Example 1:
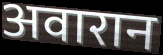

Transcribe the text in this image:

अवारान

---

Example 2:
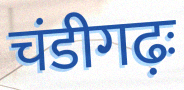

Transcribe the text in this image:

चंडीगढ़ः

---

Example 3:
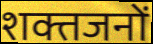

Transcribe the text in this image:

शक्तजनों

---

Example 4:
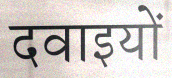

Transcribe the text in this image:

दवाइयों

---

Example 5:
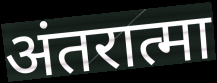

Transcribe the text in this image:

अंतरात्मा